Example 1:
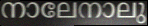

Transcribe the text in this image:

നാലേനാലു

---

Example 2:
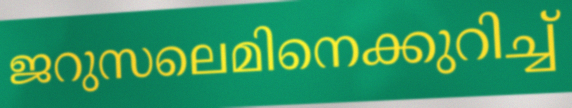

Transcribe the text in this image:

ജറുസലെമിനെക്കുറിച്ച്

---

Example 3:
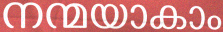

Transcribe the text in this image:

നന്മയാകാം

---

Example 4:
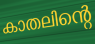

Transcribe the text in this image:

കാതലിന്റെ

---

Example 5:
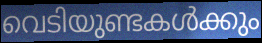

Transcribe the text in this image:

വെടിയുണ്ടകൾക്കും